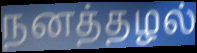
நனத்தழல்